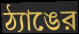
ঠ্যাঙের